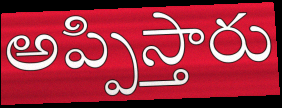
అప్పిస్తారు